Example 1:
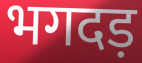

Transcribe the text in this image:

भगदड़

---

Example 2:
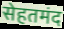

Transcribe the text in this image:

सेहतमंद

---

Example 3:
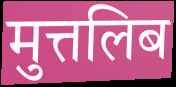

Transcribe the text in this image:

मुत्तलिब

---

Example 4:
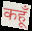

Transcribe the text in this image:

कहूँ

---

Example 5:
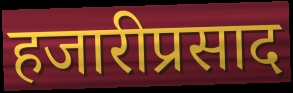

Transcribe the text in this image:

हजारीप्रसाद